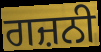
ਗਜ਼ਨੀ